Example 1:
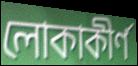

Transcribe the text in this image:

লোকাকীর্ণ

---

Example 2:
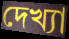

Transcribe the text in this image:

দেখ্যা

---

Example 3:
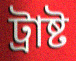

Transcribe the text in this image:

ট্রাষ্ট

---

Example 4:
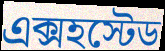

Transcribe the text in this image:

এক্সহস্টেড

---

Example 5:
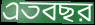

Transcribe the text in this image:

এতবছর